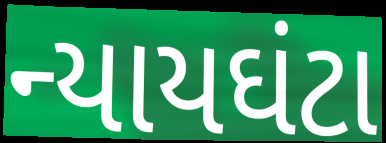
ન્યાયઘંટા